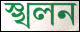
স্খলন